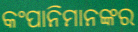
କଂପାନିମାନଙ୍କର